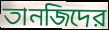
তানজিদের